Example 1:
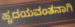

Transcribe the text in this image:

ಹೃದಯವಂತನಾಗಿ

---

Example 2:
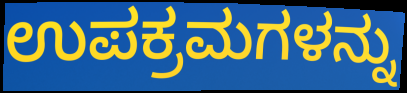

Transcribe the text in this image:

ಉಪಕ್ರಮಗಳನ್ನು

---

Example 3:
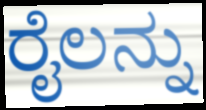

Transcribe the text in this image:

ರೈಲನ್ನು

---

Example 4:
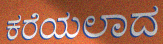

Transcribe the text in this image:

ಕರೆಯಲಾದ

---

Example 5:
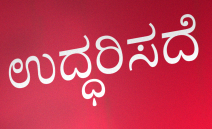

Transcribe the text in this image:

ಉದ್ಧರಿಸದೆ